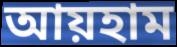
আয়হাম